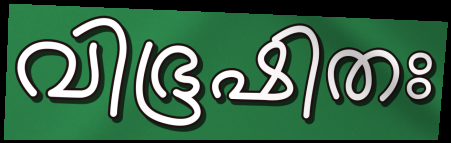
വിഭൂഷിതഃ